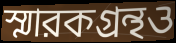
স্মারকগ্রন্থও